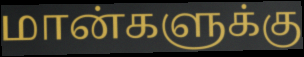
மான்களுக்கு